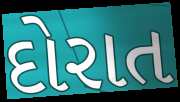
દોરાત